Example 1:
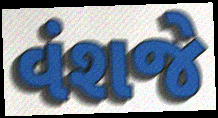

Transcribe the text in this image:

વંશજે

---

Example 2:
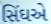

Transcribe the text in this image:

સિંઘએ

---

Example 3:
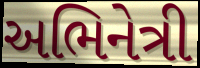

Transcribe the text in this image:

અભિનેત્રી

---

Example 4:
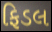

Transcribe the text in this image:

ફિડલ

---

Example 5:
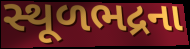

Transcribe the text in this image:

સ્થૂળભદ્રના